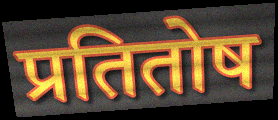
प्रतितोष